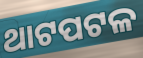
ଥାଟପଟଳ